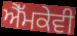
ਐੱਮਕੇਵੀ